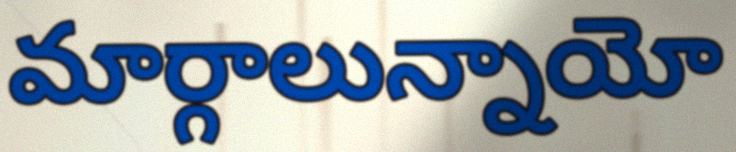
మార్గాలున్నాయో